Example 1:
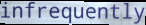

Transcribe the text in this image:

infrequently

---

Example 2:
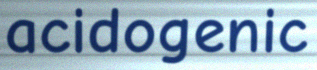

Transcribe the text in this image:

acidogenic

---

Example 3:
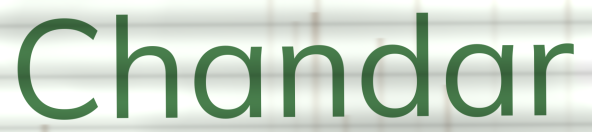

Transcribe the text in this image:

Chandar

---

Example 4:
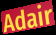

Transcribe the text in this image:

Adair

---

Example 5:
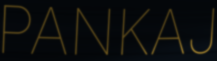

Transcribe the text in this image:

PANKAJ